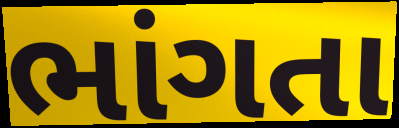
ભાંગતા